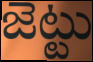
జెట్టు